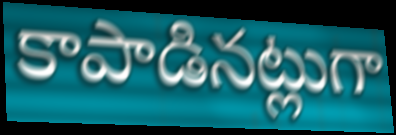
కాపాడినట్లుగా